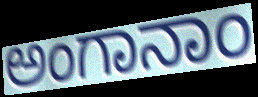
ಅಂಗಾನಾಂ